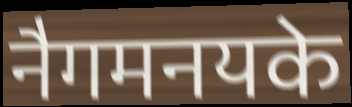
नैगमनयके